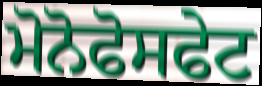
ਮੋਨੋਫੋਸਫੇਟ